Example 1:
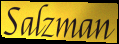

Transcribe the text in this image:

Salzman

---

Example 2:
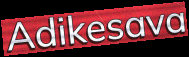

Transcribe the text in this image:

Adikesava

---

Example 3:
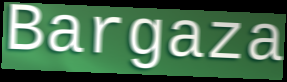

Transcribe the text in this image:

Bargaza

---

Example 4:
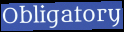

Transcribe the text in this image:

Obligatory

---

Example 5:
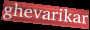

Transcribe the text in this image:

ghevarikar